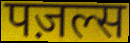
पज़ल्स